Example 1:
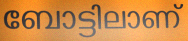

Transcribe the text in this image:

ബോട്ടിലാണ്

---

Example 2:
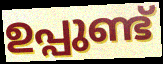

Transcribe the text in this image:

ഉപ്പുണ്ട്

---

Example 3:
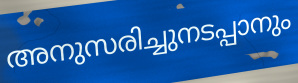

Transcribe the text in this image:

അനുസരിച്ചുനടപ്പാനും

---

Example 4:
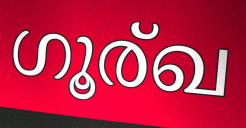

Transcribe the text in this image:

ഗൂര്ഖ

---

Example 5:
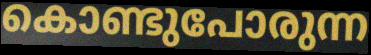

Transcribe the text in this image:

കൊണ്ടുപോരുന്ന